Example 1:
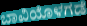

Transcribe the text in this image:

ಬಾವಿಯೊಳಗಡೆ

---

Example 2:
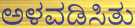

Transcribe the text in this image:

ಅಳವಡಿಸಿತು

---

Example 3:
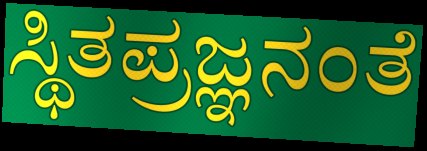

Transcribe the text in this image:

ಸ್ಥಿತಪ್ರಜ್ಞನಂತೆ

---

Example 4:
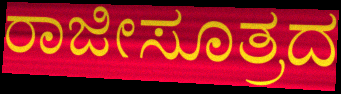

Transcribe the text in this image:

ರಾಜೀಸೂತ್ರದ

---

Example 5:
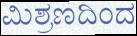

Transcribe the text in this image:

ಮಿಶ್ರಣದಿಂದ